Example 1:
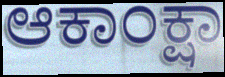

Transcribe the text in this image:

ಆಕಾಂಕ್ಷಾ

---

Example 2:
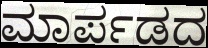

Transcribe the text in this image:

ಮಾರ್ಪಡದ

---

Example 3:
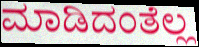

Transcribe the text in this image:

ಮಾಡಿದಂತೆಲ್ಲ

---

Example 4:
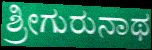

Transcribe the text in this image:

ಶ್ರೀಗುರುನಾಥ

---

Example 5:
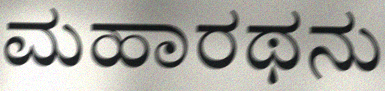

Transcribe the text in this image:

ಮಹಾರಥನು